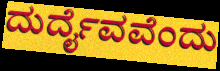
ದುರ್ದೈವವೆಂದು